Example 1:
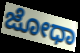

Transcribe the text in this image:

ಜೋಧಾ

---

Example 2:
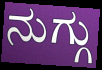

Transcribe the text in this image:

ನುಗ್ಗು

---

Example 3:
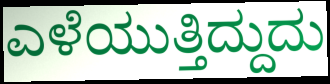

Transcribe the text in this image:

ಎಳೆಯುತ್ತಿದ್ದುದು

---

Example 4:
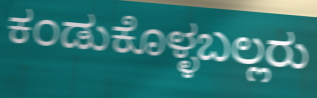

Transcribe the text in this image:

ಕಂಡುಕೊಳ್ಳಬಲ್ಲರು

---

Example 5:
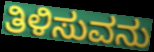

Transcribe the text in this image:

ತಿಳಿಸುವನು